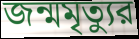
জন্মমৃত্যুর